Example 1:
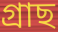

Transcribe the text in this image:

গ্ৰাছ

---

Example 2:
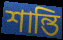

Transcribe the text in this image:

শান্তি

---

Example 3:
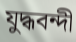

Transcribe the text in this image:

যুদ্ধবন্দী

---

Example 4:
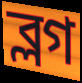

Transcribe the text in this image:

ব্লগ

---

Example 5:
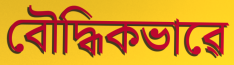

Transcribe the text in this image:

বৌদ্ধিকভাৱে